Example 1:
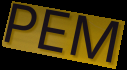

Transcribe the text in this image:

PEM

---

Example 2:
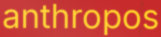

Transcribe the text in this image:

anthropos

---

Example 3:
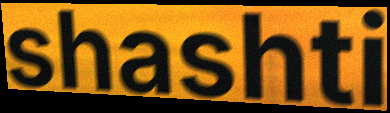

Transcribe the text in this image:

shashti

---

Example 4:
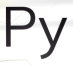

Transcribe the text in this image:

Py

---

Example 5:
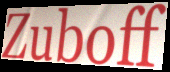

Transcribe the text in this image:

Zuboff